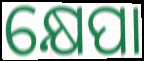
କ୍ଷେପା